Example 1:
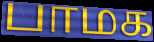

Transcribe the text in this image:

பாமக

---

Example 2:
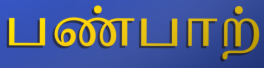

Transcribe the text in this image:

பண்பாற்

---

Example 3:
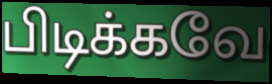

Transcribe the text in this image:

பிடிக்கவே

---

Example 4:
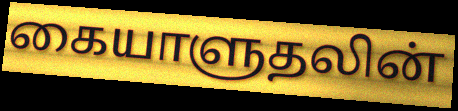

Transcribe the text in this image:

கையாளுதலின்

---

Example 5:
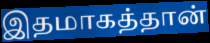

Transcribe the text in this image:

இதமாகத்தான்